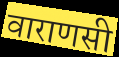
वाराणसी